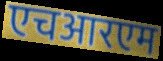
एचआरएम